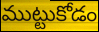
ముట్టుకోడం